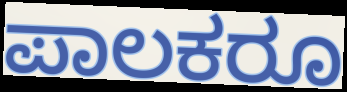
ಪಾಲಕರೂ